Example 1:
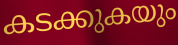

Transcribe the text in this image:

കടക്കുകയും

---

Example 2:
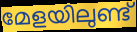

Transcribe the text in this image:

മേളയിലുണ്ട്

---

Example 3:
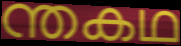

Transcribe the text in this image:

ന്തകഥ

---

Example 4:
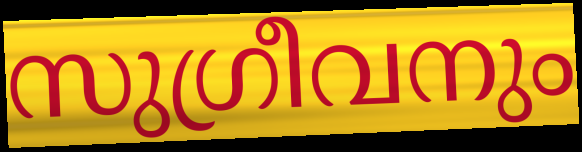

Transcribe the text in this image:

സുഗ്രീവനും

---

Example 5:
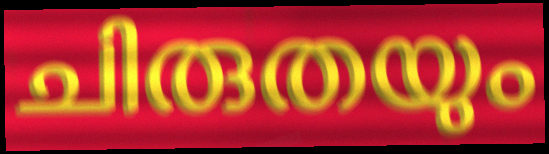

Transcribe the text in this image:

ചിരുതയും